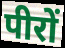
पीरों